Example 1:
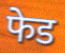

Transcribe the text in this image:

फेड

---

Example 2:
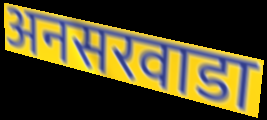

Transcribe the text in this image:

अनसरवाडा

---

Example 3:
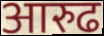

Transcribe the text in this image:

आरुढ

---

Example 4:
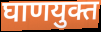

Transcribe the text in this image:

घाणयुक्त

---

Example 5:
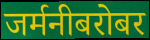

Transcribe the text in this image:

जर्मनीबरोबर